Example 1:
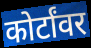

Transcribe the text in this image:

कोर्टांवर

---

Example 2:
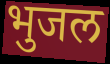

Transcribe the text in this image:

भुजल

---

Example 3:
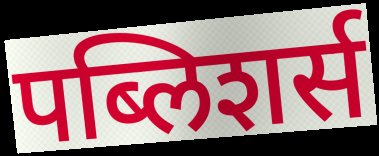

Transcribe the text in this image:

पब्लिशर्स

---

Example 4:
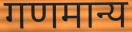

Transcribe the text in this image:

गणमान्य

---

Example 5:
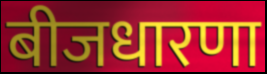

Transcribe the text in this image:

बीजधारणा